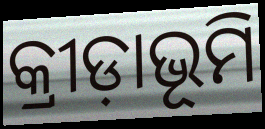
କ୍ରୀଡ଼ାଭୂମି